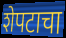
शेपटाचा